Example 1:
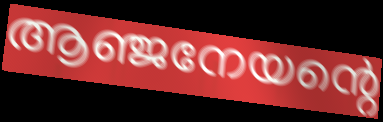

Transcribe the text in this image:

ആഞ്ജനേയന്റെ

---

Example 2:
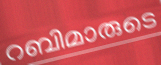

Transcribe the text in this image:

റബിമാരുടെ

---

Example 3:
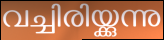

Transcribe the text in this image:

വച്ചിരിയ്ക്കുന്നു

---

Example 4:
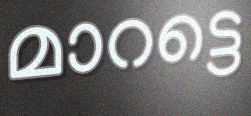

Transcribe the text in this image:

മാറട്ടെ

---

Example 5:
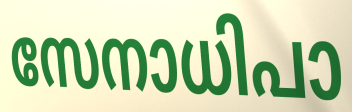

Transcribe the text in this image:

സേനാധിപാ